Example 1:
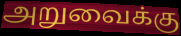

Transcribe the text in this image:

அறுவைக்கு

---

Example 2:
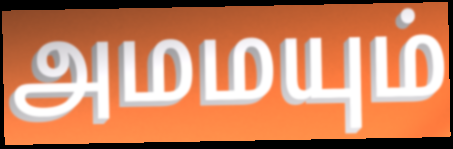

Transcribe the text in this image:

அமமயும்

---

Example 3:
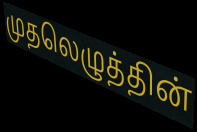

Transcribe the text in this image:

முதலெழுத்தின்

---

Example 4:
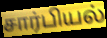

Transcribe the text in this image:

சார்பியல்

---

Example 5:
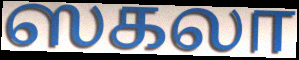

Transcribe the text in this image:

ஸகலா